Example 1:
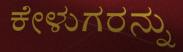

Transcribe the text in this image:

ಕೇಳುಗರನ್ನು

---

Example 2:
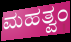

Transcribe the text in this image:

ಮಹತ್ವಂ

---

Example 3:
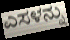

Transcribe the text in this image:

ಎಸಳನ್ನು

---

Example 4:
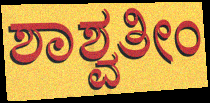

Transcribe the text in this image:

ಶಾಶ್ವತೀಂ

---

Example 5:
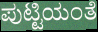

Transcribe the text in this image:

ಪುಟ್ಟಿಯಂತೆ